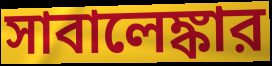
সাবালেঙ্কার